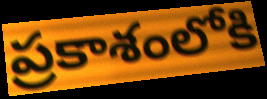
ప్రకాశంలోకి